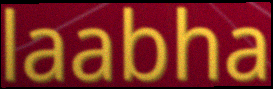
laabha